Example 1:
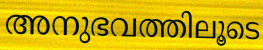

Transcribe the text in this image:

അനുഭവത്തിലൂടെ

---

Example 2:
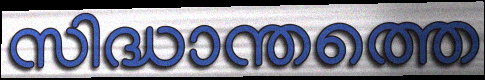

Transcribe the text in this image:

സിദ്ധാന്തത്തെ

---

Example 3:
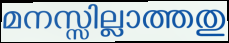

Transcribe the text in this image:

മനസ്സില്ലാത്തതു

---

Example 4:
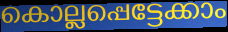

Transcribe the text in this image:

കൊല്ലപ്പെട്ടേക്കാം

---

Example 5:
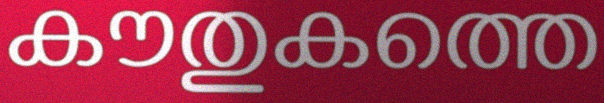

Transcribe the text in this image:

കൗതുകത്തെ